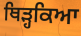
ਥਿੜ੍ਹਕਿਆ